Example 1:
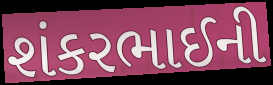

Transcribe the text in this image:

શંકરભાઈની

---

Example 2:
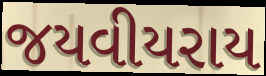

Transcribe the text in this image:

જયવીયરાય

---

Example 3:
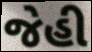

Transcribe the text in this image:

જેહી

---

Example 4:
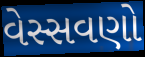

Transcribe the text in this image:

વેસ્સવણો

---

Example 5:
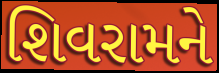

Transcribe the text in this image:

શિવરામને